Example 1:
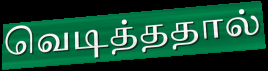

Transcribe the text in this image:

வெடித்ததால்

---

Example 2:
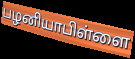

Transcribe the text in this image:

பழனியாபிள்ளை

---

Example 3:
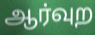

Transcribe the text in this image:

ஆர்வுற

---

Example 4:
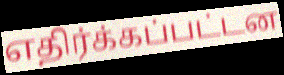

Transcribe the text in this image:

எதிர்க்கப்பட்டன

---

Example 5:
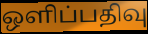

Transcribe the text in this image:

ஒளிப்பதிவு